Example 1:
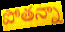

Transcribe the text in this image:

పోతన్నా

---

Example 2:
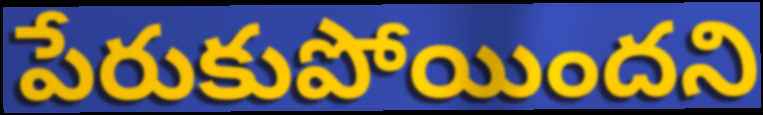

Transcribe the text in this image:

పేరుకుపోయిందని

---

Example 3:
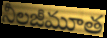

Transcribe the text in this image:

నీలజీమూత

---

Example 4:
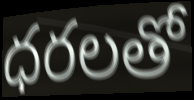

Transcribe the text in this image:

ధరలతో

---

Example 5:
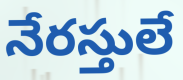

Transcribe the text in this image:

నేరస్తులే